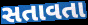
સતાવતા